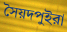
সৈয়দপুইরা